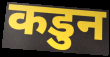
कडुन